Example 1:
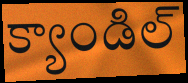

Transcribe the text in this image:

క్యాండిల్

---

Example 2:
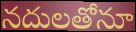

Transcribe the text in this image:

నదులతోనూ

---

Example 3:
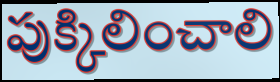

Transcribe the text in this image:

పుక్కిలించాలి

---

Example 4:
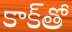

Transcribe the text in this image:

కాక్‌తో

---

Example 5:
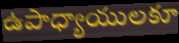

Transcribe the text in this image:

ఉపాధ్యాయులకూ